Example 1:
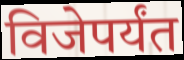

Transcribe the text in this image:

विजेपर्यंत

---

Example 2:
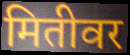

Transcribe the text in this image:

मितीवर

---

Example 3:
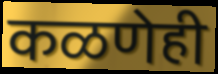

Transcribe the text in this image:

कळणेही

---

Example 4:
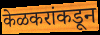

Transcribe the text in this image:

केळकरांकडून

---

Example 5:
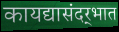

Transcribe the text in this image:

कायद्यासंदर्भात